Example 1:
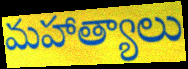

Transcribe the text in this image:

మహాత్యాలు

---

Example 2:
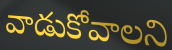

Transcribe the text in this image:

వాడుకోవాలని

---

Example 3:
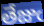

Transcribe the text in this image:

తేజుఁ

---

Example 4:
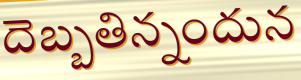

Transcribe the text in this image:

దెబ్బతిన్నందున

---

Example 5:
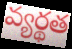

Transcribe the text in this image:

వ్యర్థత